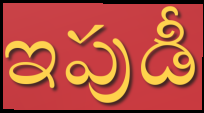
ఇపుడీ